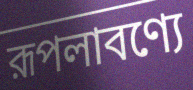
রূপলাবণ্যে